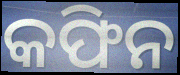
କଫିନ